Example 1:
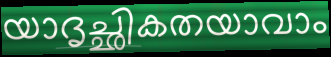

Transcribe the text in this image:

യാദൃച്ഛികതയാവാം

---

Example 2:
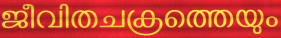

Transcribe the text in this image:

ജീവിതചക്രത്തെയും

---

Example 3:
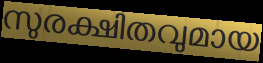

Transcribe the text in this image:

സുരക്ഷിതവുമായ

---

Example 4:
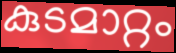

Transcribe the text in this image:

കുടമാറ്റം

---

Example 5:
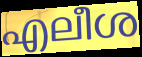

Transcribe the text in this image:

എലീശ